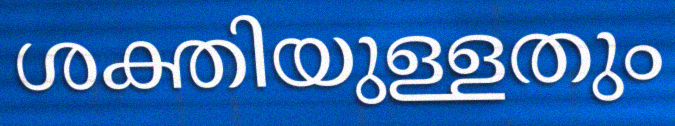
ശക്തിയുള്ളതും